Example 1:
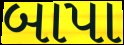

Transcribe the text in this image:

બાપા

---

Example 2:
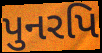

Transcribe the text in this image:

પુનરપિ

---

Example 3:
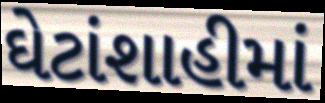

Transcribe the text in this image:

ઘેટાંશાહીમાં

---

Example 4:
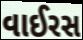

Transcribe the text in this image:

વાઈરસ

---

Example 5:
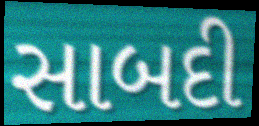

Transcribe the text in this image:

સાબદી